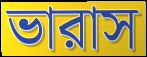
ভারাস